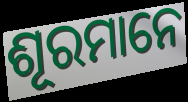
ଶୂରମାନେ